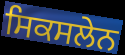
ਸਿਕਸਲੇਨ